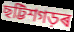
ছট্টিশগড়ৰ